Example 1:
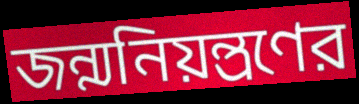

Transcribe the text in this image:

জন্মনিয়ন্ত্রণের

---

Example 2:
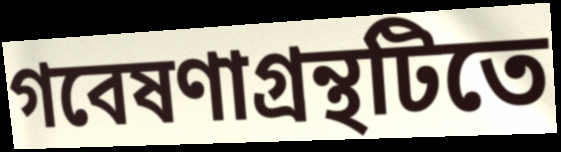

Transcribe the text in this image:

গবেষণাগ্রন্থটিতে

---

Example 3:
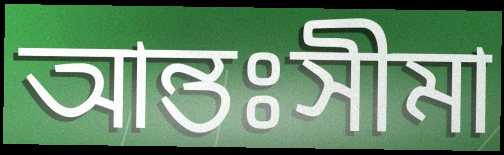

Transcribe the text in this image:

আন্তঃসীমা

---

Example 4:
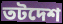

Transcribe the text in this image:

তটদেশ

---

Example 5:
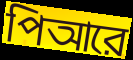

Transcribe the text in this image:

পিআরে